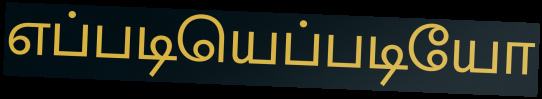
எப்படியெப்படியோ